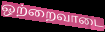
ஒற்றைவாடை